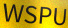
WSPU